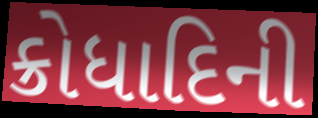
ક્રોધાદિની